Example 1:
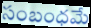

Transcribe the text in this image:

సంబంధమే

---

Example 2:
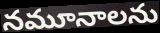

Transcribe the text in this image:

నమూనాలను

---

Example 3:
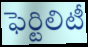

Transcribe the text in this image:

ఫెర్టిలిటీ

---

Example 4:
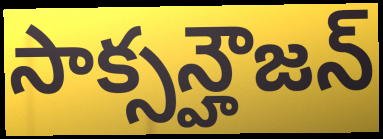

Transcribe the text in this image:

సాక్సన్హౌజన్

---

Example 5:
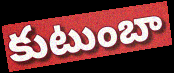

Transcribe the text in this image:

కుటుంబా